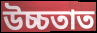
উচ্চতাত